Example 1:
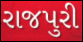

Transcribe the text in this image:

રાજપુરી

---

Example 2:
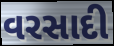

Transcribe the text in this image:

વરસાદી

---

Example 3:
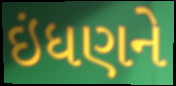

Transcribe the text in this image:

ઇંધણને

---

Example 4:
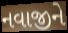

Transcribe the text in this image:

નવાજીને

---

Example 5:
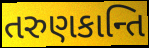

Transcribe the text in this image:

તરુણકાન્તિ